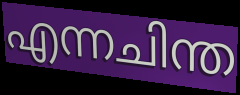
എന്നചിന്ത